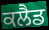
ਕਲੈਡ